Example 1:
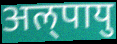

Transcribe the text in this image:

अल्पायु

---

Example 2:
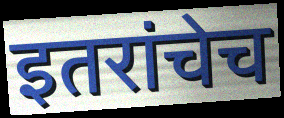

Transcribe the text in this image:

इतरांचेच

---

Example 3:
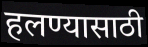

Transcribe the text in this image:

हलण्यासाठी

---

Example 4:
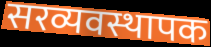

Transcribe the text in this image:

सरव्यवस्थापक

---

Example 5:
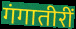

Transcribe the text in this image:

गंगातीरीं